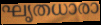
ഘൃതധാരാ